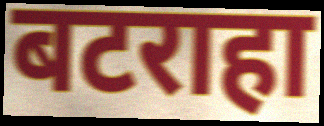
बटराहा